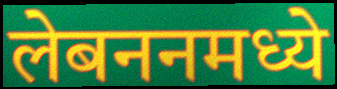
लेबननमध्ये